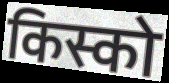
किस्को